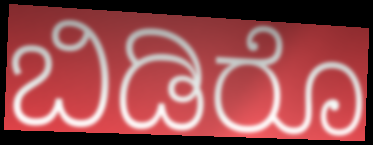
ಬಿಡಿರೊ